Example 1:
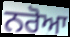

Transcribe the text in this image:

ਨਰੋਆ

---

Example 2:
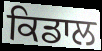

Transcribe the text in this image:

ਕਿਡਾਲ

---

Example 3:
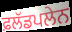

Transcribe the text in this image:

ਫ਼ਲੱਡਪਲੇਨ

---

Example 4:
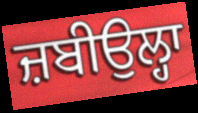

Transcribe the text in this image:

ਜ਼ਬੀਉਲ੍ਹਾ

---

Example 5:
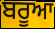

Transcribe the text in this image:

ਬਰੂਆ